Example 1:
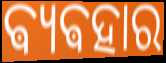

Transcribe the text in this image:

ଵ୍ଯଵହାର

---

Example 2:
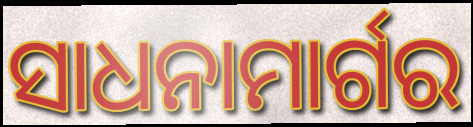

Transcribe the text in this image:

ସାଧନାମାର୍ଗର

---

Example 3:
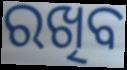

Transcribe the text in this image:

ରଖିବ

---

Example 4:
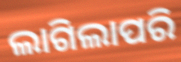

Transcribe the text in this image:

ଲାଗିଲାପରି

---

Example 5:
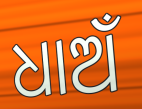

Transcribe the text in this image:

ଧାଅଁ